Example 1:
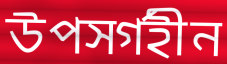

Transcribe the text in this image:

উপসর্গহীন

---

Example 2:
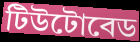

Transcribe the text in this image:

টিউটোবেড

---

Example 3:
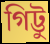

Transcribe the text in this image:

গিট্টু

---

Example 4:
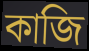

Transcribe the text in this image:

কাজি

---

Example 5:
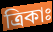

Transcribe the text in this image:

ত্রিকাঃ